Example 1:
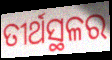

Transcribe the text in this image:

ତୀର୍ଥସ୍ଥଳର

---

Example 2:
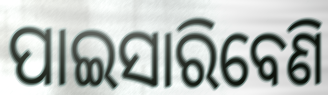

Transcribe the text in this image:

ପାଇସାରିବେଣି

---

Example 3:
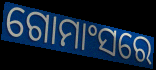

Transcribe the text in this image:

ଗୋମାଂସରେ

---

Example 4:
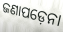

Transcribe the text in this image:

ଜଣାପଡ଼େନା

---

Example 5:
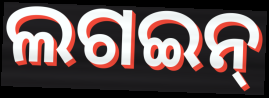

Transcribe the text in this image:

ଲଗଇନ୍